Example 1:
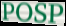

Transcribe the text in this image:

POSP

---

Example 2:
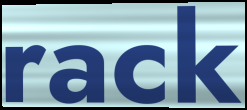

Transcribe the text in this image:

rack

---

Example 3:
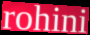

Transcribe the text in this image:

rohini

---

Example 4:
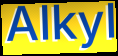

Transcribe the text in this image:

Alkyl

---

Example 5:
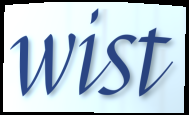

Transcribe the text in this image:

wist